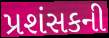
પ્રશંસકની